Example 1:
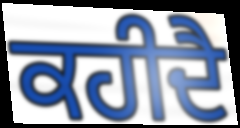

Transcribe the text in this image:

ਕਹੀਦੈ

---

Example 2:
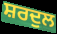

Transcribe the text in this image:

ਸ਼ਰਦੁਲ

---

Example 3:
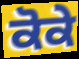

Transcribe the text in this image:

ਕੋਕੇ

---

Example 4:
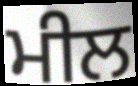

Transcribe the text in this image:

ਮੀਲ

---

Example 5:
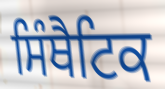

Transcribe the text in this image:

ਸਿੰਥੈਟਿਕ